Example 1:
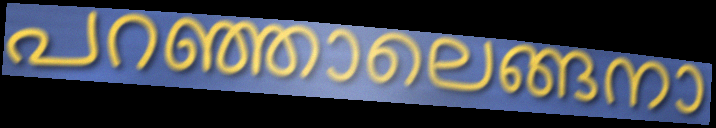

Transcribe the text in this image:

പറഞ്ഞാലെങ്ങനാ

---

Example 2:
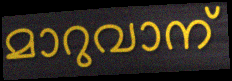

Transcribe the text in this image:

മാറുവാന്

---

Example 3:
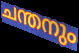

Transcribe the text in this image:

ചന്തനും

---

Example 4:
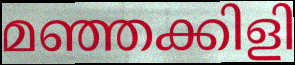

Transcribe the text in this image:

മഞ്ഞക്കിളി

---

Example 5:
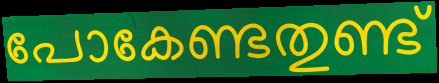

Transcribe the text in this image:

പോകേണ്ടതുണ്ട്